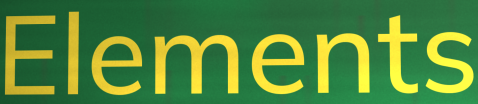
Elements